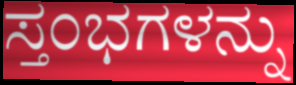
ಸ್ತಂಭಗಳನ್ನು